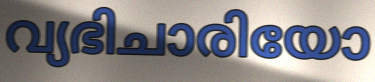
വ്യഭിചാരിയോ